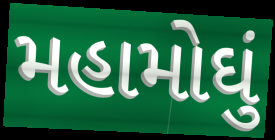
મહામોઘું